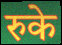
रुके